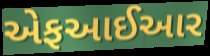
એફઆઈઆર